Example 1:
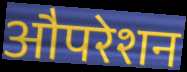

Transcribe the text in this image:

औपरेशन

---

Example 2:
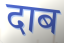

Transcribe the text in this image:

दाब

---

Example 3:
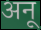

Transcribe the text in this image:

अनू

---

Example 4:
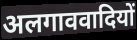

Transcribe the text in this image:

अलगाववादियों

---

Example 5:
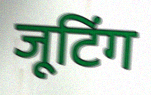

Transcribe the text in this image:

जूटिंग